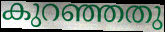
കുറഞ്ഞതു